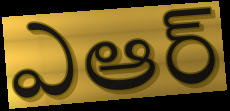
ఎఆర్